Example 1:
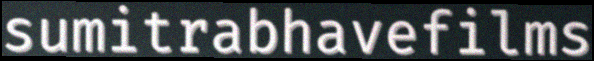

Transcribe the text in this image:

sumitrabhavefilms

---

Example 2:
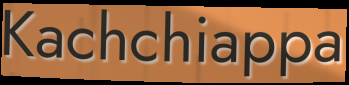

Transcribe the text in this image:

Kachchiappa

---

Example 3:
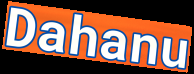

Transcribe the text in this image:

Dahanu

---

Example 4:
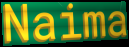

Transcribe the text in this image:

Naima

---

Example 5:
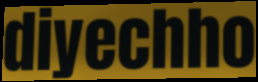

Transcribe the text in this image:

diyechho